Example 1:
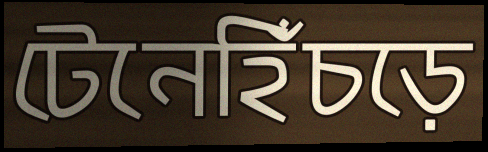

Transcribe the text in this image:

টেনেহিঁচড়ে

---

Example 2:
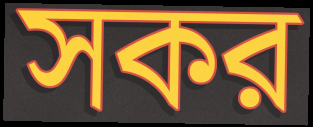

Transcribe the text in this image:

সকর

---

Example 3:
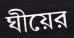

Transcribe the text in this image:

ঘীয়ের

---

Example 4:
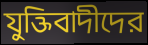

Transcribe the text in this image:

যুক্তিবাদীদের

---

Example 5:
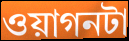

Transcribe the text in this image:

ওয়াগনটা